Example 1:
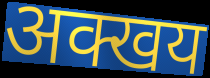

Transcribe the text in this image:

अक्खय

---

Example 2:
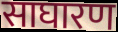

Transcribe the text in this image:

साघारण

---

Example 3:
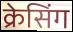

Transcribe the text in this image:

क्रेसिंग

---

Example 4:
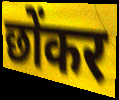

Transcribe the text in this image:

छोंकर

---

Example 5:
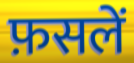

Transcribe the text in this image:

फ़सलें